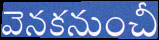
వెనకనుంచీ